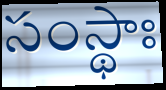
సంస్థాః